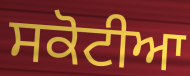
ਸਕੋਟੀਆ